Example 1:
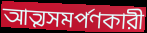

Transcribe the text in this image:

আত্মসমর্পণকারী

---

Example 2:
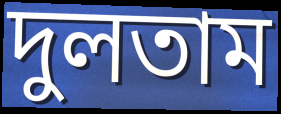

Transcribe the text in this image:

দুলতাম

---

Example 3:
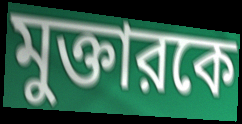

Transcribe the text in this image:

মুক্তারকে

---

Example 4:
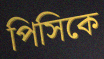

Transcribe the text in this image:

পিসিকে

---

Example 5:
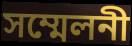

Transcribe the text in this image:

সম্মেলনী